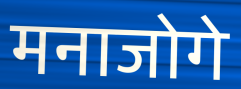
मनाजोगे